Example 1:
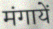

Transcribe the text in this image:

मंगायें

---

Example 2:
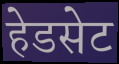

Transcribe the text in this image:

हेडसेट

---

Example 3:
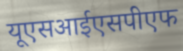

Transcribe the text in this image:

यूएसआईएसपीएफ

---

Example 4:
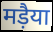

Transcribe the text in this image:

मड़ैया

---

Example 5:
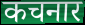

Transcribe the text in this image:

कचनार